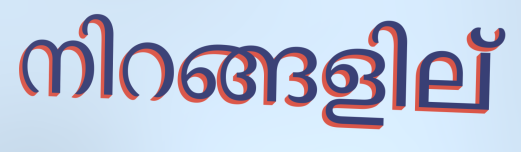
നിറങ്ങളില്